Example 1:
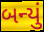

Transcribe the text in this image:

બન્યું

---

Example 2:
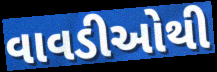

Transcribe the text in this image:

વાવડીઓથી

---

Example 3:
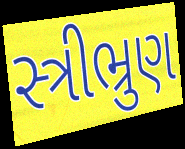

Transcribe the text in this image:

સ્ત્રીભ્રુણ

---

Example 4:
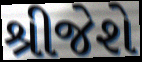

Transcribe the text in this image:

શ્રીજેશે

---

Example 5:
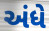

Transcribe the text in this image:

અંધે